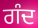
ਗੰਦ